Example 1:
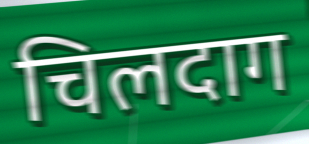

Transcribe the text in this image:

चिलदाग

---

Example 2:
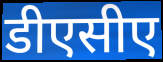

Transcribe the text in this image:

डीएसीए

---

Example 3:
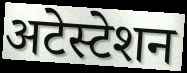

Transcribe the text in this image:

अटेस्टेशन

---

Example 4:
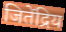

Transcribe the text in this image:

जितेंद्रिय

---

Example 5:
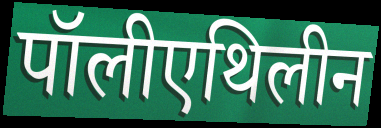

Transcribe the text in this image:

पॉलीएथिलीन